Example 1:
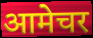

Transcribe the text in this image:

आमेचर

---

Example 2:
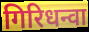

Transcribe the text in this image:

गिरिधन्वा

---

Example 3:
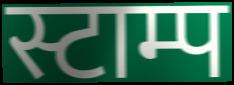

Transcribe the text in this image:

स्टाम्प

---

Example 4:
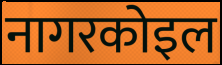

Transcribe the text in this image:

नागरकोइल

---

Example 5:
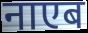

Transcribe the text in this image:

नाएब